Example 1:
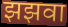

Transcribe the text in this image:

झझवा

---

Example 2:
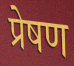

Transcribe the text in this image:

प्रेषण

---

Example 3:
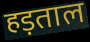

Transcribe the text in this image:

हड़ताल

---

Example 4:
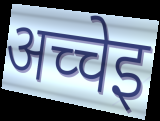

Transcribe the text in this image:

अच्चेइ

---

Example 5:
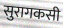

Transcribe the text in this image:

सुरागकसी